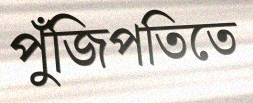
পুঁজিপতিতে